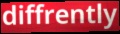
diffrently